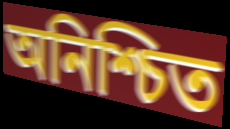
অনিশ্চিত